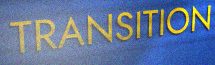
TRANSITION